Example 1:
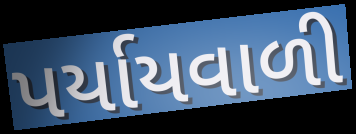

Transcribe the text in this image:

પર્યાયવાળી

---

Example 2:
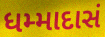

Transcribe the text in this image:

ધમ્માદાસં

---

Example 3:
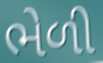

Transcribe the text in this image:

ભેળી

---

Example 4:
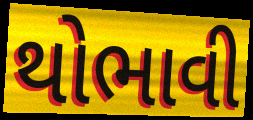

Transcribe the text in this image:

થોભાવી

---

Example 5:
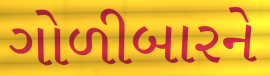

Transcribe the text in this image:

ગોળીબારને